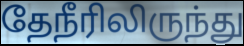
தேநீரிலிருந்து